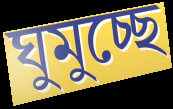
ঘুমুচ্ছে